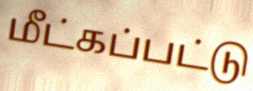
மீட்கப்பட்டு